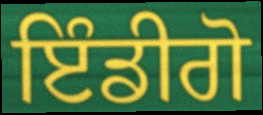
ਇੰਡੀਗੋ